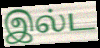
இல்ட